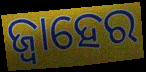
ଜ୍ୱାହେର